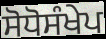
ਸੋਧੋਸੰਖੇਪ